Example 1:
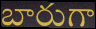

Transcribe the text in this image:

బారుగా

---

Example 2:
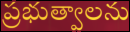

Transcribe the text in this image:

ప్రభుత్వాలను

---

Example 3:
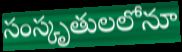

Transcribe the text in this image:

సంస్కృతులలోనూ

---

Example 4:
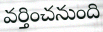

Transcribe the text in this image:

వర్తించనుంది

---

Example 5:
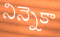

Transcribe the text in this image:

నిన్నెకా